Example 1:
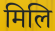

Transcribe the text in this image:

मिलि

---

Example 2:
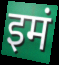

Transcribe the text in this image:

इमं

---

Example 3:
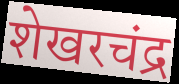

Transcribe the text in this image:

शेखरचंद्र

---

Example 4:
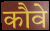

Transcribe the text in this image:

कौवे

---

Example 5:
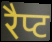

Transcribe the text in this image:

रैप्ट